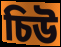
চিউ